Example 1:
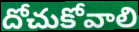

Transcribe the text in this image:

దోచుకోవాలి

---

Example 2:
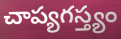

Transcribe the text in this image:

చాప్యగస్త్యం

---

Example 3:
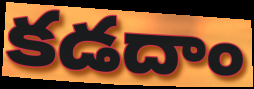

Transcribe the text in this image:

కడదాం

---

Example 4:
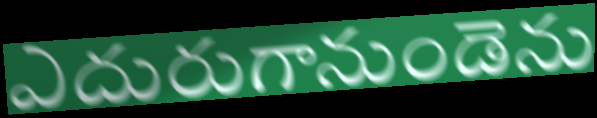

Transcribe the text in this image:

ఎదురుగానుండెను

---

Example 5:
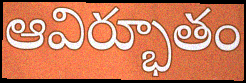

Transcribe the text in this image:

ఆవిర్భూతం